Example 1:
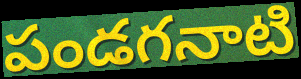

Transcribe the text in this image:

పండగనాటి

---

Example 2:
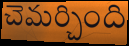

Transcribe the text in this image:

చెమర్చింది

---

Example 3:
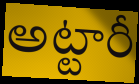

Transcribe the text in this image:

అట్టారీ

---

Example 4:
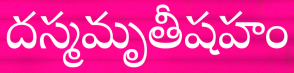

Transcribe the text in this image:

దస్మమృతీషహం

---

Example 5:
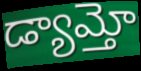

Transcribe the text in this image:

డ్యామ్తో